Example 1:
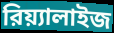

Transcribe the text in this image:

রিয়্যালাইজ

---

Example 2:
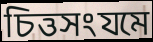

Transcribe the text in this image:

চিত্তসংযমে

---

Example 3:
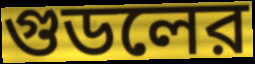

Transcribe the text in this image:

গুডলের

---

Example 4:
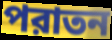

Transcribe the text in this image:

পরাতন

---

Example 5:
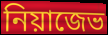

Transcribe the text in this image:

নিয়াজেভ